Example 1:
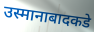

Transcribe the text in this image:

उस्मानाबादकडे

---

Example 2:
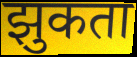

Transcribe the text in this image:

झुकता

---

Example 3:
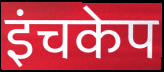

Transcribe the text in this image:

इंचकेप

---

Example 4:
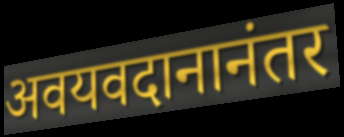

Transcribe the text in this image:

अवयवदानानंतर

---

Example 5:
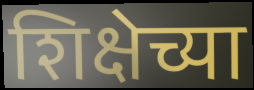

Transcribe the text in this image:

शिक्षेच्या